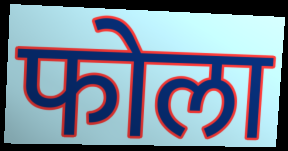
फोला